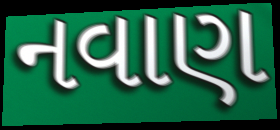
નવાણ